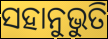
ସହାନୁଭୁତି